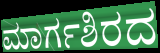
ಮಾರ್ಗಶಿರದ